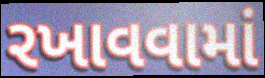
રખાવવામાં